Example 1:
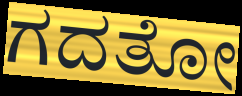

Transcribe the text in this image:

ಗದತೋ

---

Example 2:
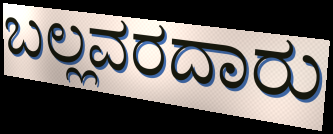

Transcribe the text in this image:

ಬಲ್ಲವರದಾರು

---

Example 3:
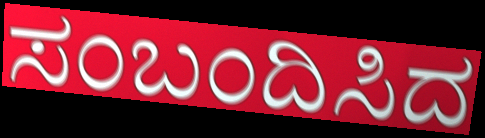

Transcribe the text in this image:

ಸಂಬಂದಿಸಿದ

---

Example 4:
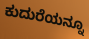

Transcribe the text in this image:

ಕುದುರೆಯನ್ನೂ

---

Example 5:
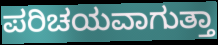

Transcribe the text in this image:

ಪರಿಚಯವಾಗುತ್ತಾ